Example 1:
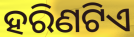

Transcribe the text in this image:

ହରିଣଟିଏ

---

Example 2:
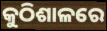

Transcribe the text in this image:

କୁଠିଶାଳରେ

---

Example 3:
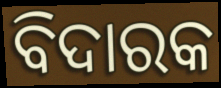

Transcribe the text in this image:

ବିଦାରକ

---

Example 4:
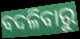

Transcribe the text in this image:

ବଦଳିବାରୁ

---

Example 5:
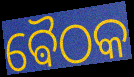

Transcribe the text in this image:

ଵୈଠକ